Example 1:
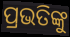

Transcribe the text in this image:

ପ୍ରଭତିଙ୍କୁ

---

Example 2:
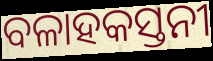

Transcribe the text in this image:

ବଳାହକସ୍ତନୀ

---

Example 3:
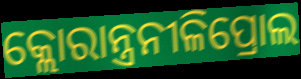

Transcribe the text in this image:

କ୍ଲୋରାନ୍ତ୍ରନୀଳିପ୍ରୋଲ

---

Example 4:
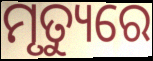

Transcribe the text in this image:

ମୃତ୍ୟୁରେ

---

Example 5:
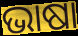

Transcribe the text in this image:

ଭାଷା